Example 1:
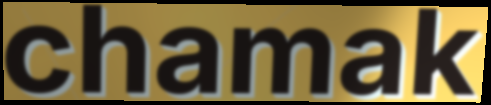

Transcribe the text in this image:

chamak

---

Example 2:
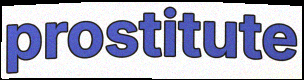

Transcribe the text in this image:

prostitute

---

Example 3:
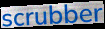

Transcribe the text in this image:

scrubber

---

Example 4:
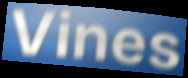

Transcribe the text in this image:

Vines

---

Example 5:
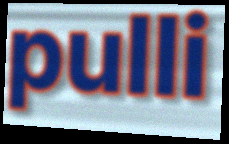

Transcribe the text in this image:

pulli